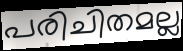
പരിചിതമല്ല